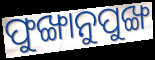
ଫୁଙ୍ଖାନୁପୁଙ୍ଖ